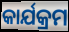
କାର୍ଯକ୍ରମ